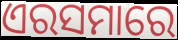
ଏରସମାରେ